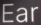
Ear